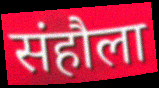
संहौला